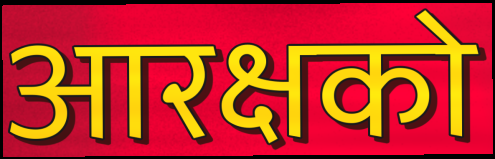
आरक्षको